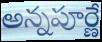
అన్నపూర్ణే